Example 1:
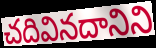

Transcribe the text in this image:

చదివినదానిని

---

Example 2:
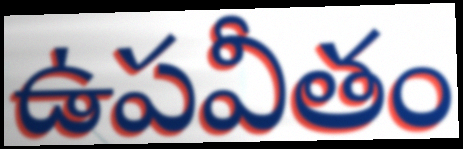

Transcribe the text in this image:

ఉపవీతం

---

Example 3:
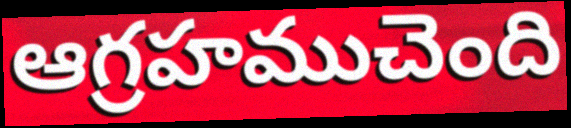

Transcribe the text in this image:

ఆగ్రహముచెంది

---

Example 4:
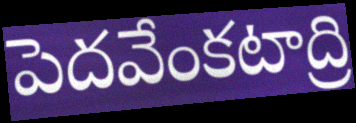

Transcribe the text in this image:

పెదవేంకటాద్రి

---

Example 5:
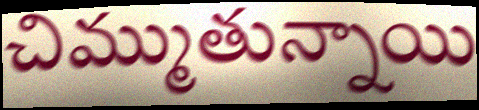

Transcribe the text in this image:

చిమ్ముతున్నాయి